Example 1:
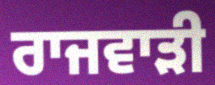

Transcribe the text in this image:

ਰਾਜਵਾੜੀ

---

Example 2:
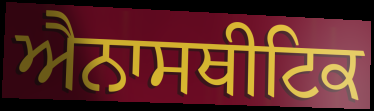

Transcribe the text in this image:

ਐਨਾਸਥੀਟਿਕ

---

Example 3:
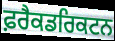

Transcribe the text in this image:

ਫ਼ਰੈਕਡਰਿਕਟਨ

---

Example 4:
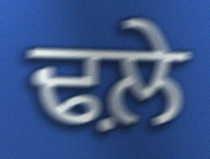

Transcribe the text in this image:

ਢਲ਼ੇ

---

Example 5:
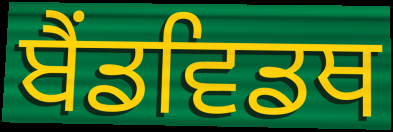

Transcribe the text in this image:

ਬੈਂਡਵਿਡਥ